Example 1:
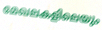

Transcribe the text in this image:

മേഖലകളിലെയും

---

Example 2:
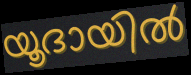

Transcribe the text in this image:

യൂദായിൽ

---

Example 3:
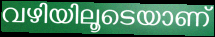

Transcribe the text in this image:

വഴിയിലൂടെയാണ്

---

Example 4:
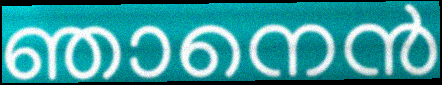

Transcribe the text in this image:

ഞാനെൻ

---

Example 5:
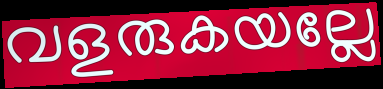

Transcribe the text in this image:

വളരുകയല്ലേ